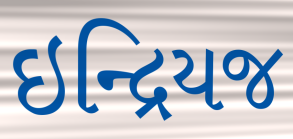
ઇન્દ્રિયજ